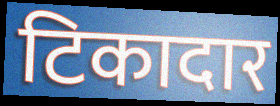
टिकादार